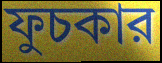
ফুচকার